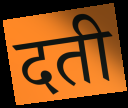
दती